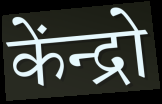
केंन्द्रो